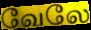
வேலே